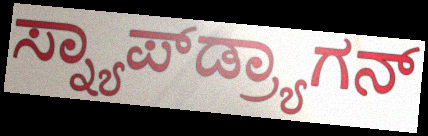
ಸ್ನ್ಯಾಪ್‌ಡ್ರ್ಯಾಗನ್